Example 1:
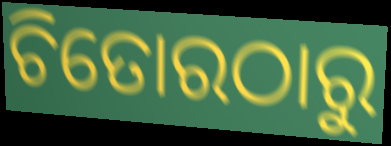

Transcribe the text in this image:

ଚିତୋରଠାରୁ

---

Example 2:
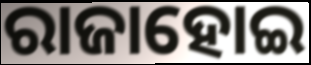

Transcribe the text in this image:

ରାଜାହୋଇ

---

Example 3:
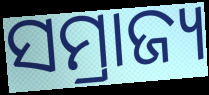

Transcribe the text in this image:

ସମ୍ରାଜ୍ୟ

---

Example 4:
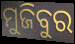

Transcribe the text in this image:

ମୁଜିବୁର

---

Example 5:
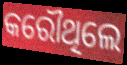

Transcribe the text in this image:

କରୌଥିଲେ